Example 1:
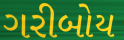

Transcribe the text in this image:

ગરીબોય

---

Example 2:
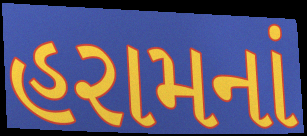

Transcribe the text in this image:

હરામનાં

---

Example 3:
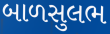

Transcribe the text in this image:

બાળસુલભ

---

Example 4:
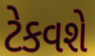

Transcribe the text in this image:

ટેકવશે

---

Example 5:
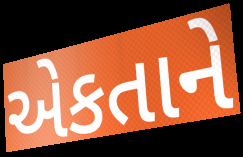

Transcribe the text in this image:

એકતાને